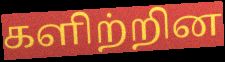
களிற்றின